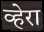
व्हेरा